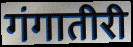
गंगातीरी